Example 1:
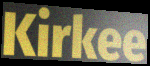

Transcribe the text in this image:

Kirkee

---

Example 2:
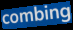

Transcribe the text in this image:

combing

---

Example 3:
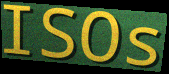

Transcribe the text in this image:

ISOs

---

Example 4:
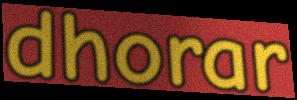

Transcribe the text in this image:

dhorar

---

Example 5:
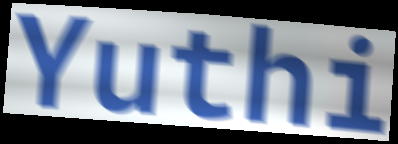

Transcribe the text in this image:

Yuthi